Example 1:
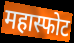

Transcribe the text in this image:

महास्फोट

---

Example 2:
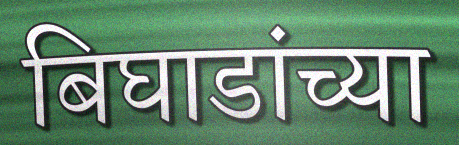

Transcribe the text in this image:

बिघाडांच्या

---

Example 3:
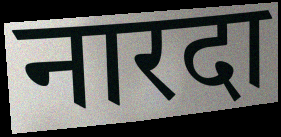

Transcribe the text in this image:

नारदा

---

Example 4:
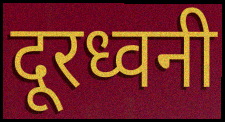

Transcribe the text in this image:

दूरध्वनी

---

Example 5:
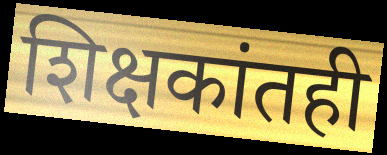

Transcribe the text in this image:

शिक्षकांतही